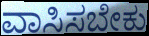
ವಾಸಿಸಬೇಕು